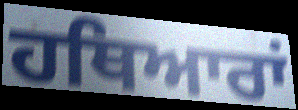
ਹਥਿਆਰਾਂ